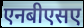
एनबीएसए